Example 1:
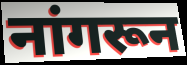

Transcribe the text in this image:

नांगरून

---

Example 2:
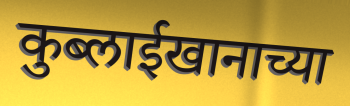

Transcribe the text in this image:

कुब्लाईखानाच्या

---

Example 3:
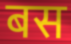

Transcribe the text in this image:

बस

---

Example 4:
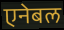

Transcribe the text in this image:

एनेबल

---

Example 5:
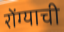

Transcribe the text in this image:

रोंग्याची